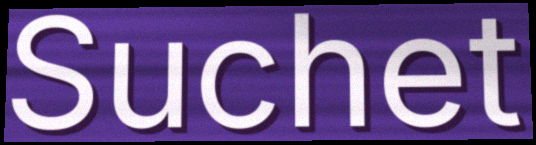
Suchet